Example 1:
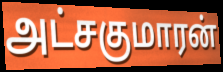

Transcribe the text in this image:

அட்சகுமாரன்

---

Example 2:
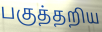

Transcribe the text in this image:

பகுத்தறிய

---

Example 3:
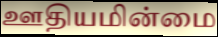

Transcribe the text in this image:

ஊதியமின்மை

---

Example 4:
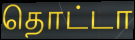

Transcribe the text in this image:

தொட்டா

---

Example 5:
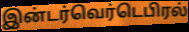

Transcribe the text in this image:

இன்டர்வெர்டெபிரல்